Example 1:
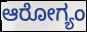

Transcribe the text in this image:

ಆರೋಗ್ಯಂ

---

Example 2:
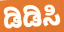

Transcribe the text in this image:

ಡಿಡಿಸಿ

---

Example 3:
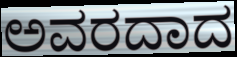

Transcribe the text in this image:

ಅವರದಾದ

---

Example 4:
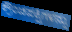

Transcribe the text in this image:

ಕ್ರೌಂಚಪಕ್ಷಿಗಳನ್ನು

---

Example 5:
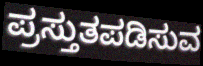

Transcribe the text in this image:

ಪ್ರಸ್ತುತಪಡಿಸುವ